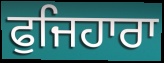
ਫੁਜਿਹਾਰਾ